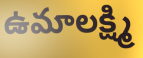
ఉమాలక్ష్మి